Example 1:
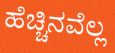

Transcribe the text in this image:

ಹೆಚ್ಚಿನವೆಲ್ಲ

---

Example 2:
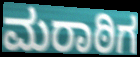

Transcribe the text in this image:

ಮರಾಠಿಗ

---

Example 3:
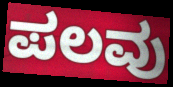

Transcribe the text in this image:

ಪಲವು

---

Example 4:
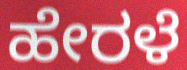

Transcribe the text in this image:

ಹೇರಳೆ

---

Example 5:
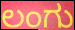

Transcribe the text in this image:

ಲಂಗು